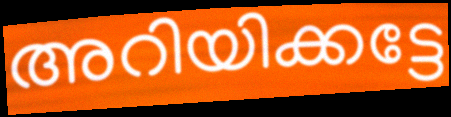
അറിയിക്കട്ടേ